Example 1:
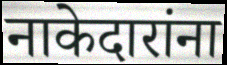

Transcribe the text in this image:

नाकेदारांना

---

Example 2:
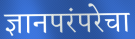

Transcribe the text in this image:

ज्ञानपरंपरेचा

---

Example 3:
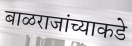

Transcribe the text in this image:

बाळराजांच्याकडे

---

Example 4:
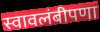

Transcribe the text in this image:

स्वावलंबीपणा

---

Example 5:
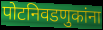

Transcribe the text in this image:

पोटनिवडणुकांना